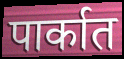
पार्कात